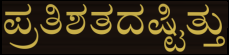
ಪ್ರತಿಶತದಷ್ಟಿತ್ತು